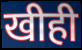
खीही